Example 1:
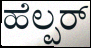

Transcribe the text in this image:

ಹೆಲ್ಪರ್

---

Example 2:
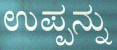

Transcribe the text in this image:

ಉಪ್ಪನ್ನು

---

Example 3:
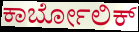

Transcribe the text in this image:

ಕಾರ್ಬೋಲಿಕ್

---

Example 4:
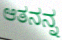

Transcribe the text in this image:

ಆತನನ್ನ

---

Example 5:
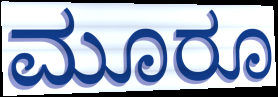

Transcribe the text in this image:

ಮೂರೂ